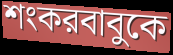
শংকরবাবুকে